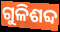
ଗୁଳିଶବ୍ଦ